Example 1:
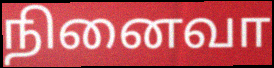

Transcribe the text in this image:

நினைவா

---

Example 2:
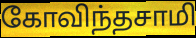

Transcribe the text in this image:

கோவிந்தசாமி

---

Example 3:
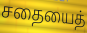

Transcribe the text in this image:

சதையைத்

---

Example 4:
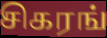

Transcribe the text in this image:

சிகரங்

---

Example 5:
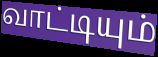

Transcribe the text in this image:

வாட்டியும்